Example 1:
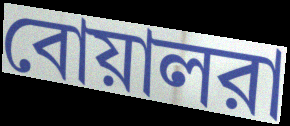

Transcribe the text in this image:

বোয়ালরা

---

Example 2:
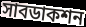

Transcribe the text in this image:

সাবডাকশন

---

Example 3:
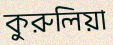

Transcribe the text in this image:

কুরুলিয়া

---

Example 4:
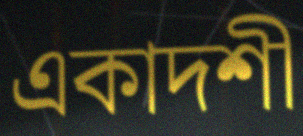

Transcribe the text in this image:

একাদশী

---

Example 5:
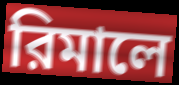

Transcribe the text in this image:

রিমালে